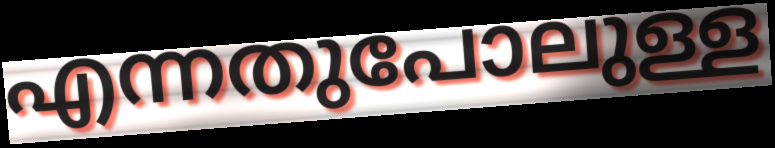
എന്നതുപോലുള്ള